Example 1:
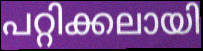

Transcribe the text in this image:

പറ്റിക്കലായി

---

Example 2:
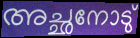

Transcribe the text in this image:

അച്ഛനോടു്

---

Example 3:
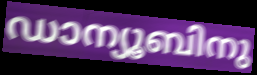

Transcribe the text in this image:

ഡാന്യൂബിനു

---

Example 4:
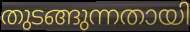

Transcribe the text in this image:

തുടങ്ങുന്നതായി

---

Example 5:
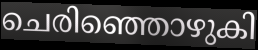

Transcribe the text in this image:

ചെരിഞ്ഞൊഴുകി